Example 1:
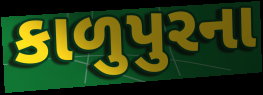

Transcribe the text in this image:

કાળુપુરના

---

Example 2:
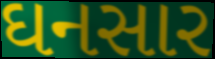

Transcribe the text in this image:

ઘનસાર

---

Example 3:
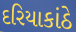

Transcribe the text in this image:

દરિયાકાંઠે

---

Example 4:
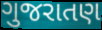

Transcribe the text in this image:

ગુજરાતણ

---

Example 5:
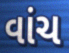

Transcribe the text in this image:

વાંચ